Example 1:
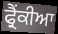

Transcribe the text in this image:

ਫ੍ਰੈਂਕੀਆ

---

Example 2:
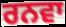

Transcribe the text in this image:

ਰਨਵਾ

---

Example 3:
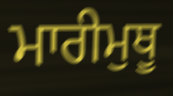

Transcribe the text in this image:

ਮਾਰੀਮੁਥੂ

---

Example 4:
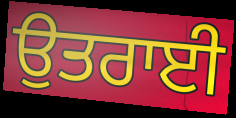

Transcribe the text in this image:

ਉਤਰਾਈ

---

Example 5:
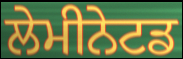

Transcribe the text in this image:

ਲੇਮੀਨੇਟਡ